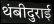
थंबीदुराई